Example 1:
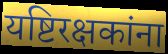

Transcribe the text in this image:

यष्टिरक्षकांना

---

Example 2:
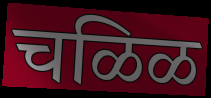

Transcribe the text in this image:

चळिळ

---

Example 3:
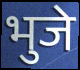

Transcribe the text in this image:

भुजे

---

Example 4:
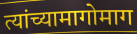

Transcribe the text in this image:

त्यांच्यामागोमाग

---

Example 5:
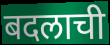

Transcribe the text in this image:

बदलाची